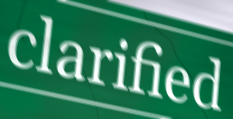
clarified